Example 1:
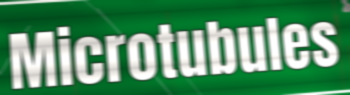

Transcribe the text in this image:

Microtubules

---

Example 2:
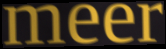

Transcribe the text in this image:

meer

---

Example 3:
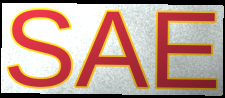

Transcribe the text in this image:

SAE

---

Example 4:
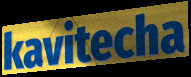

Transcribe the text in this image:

kavitecha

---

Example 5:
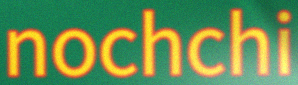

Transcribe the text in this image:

nochchi